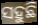
ସହୁଛି